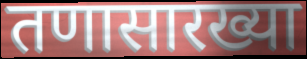
तणासारख्या